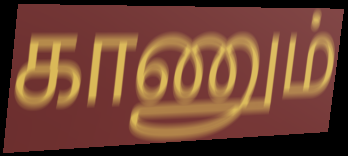
காணும்